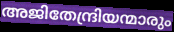
അജിതേന്ദ്രിയന്മാരും